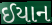
ઈયાન